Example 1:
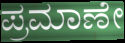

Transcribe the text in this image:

ಪ್ರಮಾಣೇ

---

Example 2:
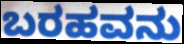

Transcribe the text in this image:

ಬರಹವನು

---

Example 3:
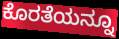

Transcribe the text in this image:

ಕೊರತೆಯನ್ನೂ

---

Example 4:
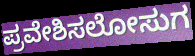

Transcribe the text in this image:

ಪ್ರವೇಶಿಸಲೋಸುಗ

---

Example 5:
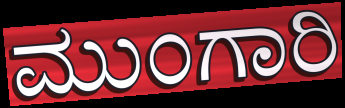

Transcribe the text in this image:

ಮುಂಗಾರಿ